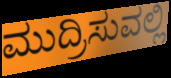
ಮುದ್ರಿಸುವಲ್ಲಿ